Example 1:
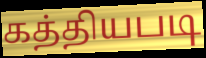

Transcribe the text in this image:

கத்தியபடி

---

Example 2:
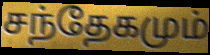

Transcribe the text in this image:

சந்தேகமும்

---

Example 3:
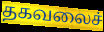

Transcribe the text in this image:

தகவலைச்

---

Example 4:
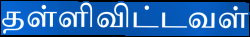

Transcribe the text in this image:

தள்ளிவிட்டவள்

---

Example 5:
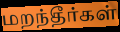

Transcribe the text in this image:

மறந்தீர்கள்